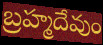
బ్రహ్మదేవుం